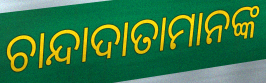
ଚାନ୍ଦାଦାତାମାନଙ୍କ